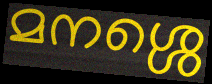
മനശ്ശെ